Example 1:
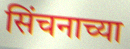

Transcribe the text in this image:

सिंचनाच्या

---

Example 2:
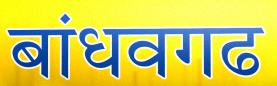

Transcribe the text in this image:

बांधवगढ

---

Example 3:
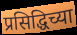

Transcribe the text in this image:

प्रसिद्धिच्या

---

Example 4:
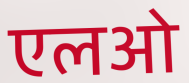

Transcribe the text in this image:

एलओ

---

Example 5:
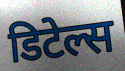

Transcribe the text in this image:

डिटेल्स